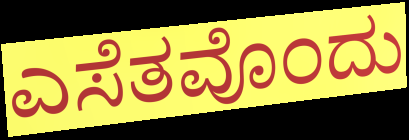
ಎಸೆತವೊಂದು